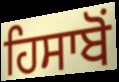
ਹਿਸਾਬੋਂ